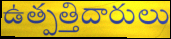
ఉత్పత్తిదారులు